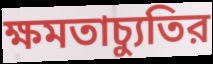
ক্ষমতাচ্যুতির